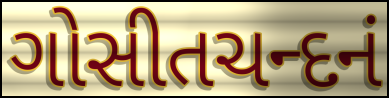
ગોસીતચન્દનં